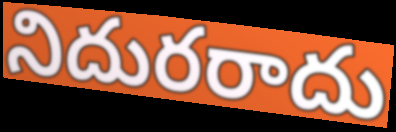
నిదురరాదు